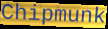
Chipmunk